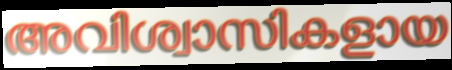
അവിശ്വാസികളായ